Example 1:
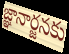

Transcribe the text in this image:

జ్ఞానార్జనకు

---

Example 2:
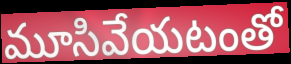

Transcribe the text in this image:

మూసివేయటంతో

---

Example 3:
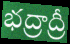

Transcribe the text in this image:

భద్రాద్రీ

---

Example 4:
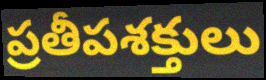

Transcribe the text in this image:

ప్రతీపశక్తులు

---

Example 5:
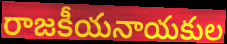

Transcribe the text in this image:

రాజకీయనాయకుల